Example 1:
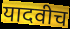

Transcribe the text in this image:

यादवीच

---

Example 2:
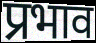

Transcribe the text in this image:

प्रभाव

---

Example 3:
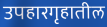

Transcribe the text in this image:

उपहारगृहातील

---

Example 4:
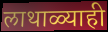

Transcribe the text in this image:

लाथाळ्याही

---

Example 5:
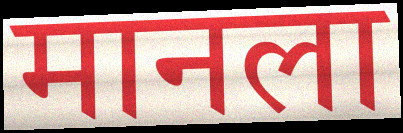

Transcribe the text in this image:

मानला